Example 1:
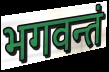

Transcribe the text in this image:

भगवन्तं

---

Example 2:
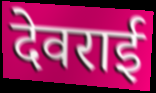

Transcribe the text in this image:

देवराई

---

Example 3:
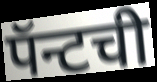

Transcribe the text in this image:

पॅन्टची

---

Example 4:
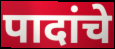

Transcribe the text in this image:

पादांचे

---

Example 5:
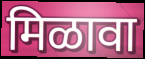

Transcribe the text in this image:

मिळावा